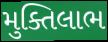
મુક્તિલાભ